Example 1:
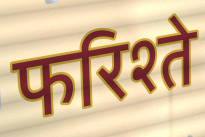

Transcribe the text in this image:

फरिश्ते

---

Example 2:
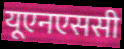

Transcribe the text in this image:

यूएनएससी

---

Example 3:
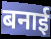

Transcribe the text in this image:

बनाई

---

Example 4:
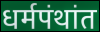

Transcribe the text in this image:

धर्मपंथांत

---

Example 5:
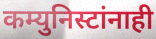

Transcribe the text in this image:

कम्युनिस्टांनाही